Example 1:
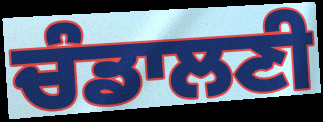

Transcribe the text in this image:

ਚੰਡਾਲਣੀ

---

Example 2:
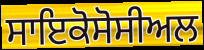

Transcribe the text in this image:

ਸਾਇਕੋਸੋਸੀਅਲ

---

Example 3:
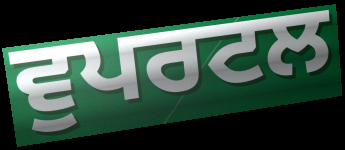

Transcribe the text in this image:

ਵੁਪਰਟਲ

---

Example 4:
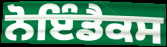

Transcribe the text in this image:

ਨੋਇੰਡੈਕਸ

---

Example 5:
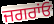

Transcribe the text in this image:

ਜਗਰਾਂਓ